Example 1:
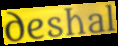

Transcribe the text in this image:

deshal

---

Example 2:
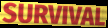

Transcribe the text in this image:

SURVIVAL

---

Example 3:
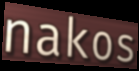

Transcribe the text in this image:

nakos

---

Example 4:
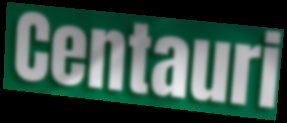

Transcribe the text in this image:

Centauri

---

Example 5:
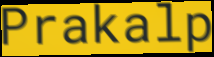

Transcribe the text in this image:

Prakalp